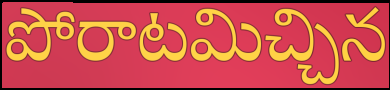
పోరాటమిచ్చిన